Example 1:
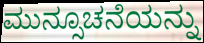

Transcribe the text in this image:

ಮುನ್ಸೂಚನೆಯನ್ನು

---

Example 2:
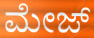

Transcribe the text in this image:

ಮೇಜ್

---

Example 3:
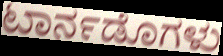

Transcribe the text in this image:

ಟಾರ್ನಡೊಗಳು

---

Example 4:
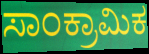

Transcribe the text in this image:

ಸಾಂಕ್ರಾಮಿಕ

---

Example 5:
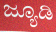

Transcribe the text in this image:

ಜ್ಯೂಡಿ